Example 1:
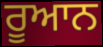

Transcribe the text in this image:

ਰੂਆਨ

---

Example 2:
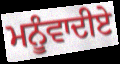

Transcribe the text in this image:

ਮਨੂੰਵਾਦੀਏ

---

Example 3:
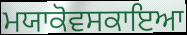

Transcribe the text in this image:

ਮਯਾਕੋਵਸਕਾਇਆ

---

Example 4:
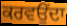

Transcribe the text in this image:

ਕਰਵਉਂਦਾ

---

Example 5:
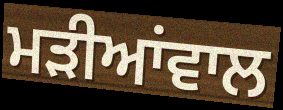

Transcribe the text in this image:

ਮੜੀਆਂਵਾਲ